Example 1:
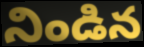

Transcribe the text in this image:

నిండిన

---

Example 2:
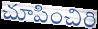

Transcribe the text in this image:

చూపించిరి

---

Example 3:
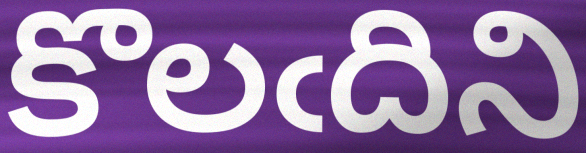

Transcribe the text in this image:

కొలఁదిని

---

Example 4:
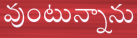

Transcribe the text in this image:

వుంటున్నాను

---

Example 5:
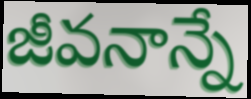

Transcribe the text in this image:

జీవనాన్నే